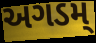
અગડમ્